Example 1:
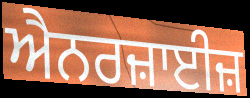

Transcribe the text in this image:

ਐਨਰਜ਼ਾਈਜ਼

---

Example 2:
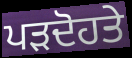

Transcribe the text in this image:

ਪੜਦੋਹਤੇ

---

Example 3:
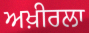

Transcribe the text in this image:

ਅਖ਼ੀਰਲਾ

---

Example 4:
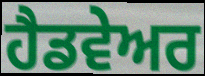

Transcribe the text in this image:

ਹੈਡਵੇਅਰ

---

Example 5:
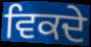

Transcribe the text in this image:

ਵਿਕਦੇ